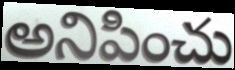
అనిపించు